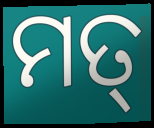
ମତ୍